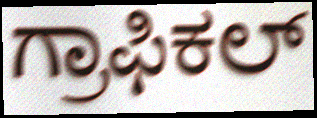
ಗ್ರಾಫಿಕಲ್